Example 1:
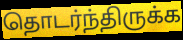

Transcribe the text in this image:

தொடர்ந்திருக்க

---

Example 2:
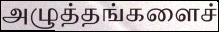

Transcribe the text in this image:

அழுத்தங்களைச்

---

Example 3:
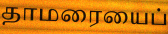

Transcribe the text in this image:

தாமரையைப்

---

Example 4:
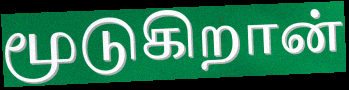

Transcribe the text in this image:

மூடுகிறான்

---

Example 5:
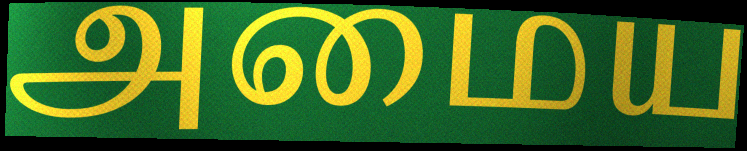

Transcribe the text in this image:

அமைய